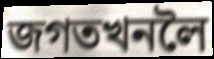
জগতখনলৈ